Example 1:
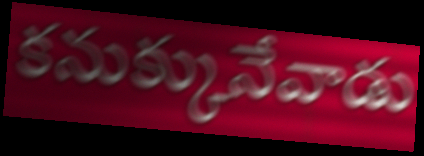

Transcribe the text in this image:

కనుక్కునేవాడు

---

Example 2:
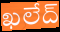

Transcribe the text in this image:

ఖలేద్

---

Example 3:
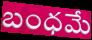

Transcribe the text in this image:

బంధమే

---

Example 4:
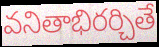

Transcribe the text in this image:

వనితాభిరర్చితే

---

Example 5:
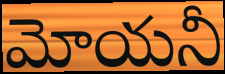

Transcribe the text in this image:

మోయనీ